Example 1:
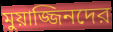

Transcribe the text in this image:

মুয়াজ্জিনদের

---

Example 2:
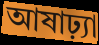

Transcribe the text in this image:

আষাঢ়্যা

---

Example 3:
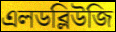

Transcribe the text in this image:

এলডব্লিউজি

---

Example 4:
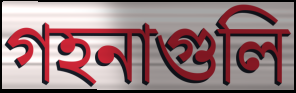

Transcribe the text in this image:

গহনাগুলি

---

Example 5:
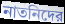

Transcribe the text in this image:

নাতনিদের